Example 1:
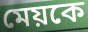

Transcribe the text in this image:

মেয়কে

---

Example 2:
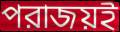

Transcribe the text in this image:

পরাজয়ই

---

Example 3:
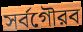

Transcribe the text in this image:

সর্বগৌরব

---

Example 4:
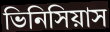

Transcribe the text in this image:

ভিনিসিয়াস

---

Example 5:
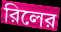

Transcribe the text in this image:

রিলের